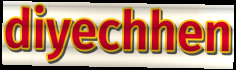
diyechhen